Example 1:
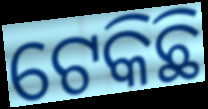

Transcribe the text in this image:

ଟେକିଛି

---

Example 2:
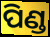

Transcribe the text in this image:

ପିଣ୍ଡ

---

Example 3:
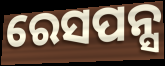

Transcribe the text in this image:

ରେସପନ୍ସ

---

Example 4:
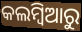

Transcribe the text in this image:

କଲମ୍ବିଆରୁ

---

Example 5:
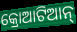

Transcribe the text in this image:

କ୍ରୋଆଟିଆନ୍